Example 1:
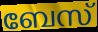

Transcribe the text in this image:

ബേസ്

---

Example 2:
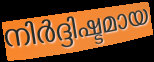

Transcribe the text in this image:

നിർദ്ദിഷ്ടമായ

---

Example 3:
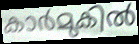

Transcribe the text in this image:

കാർമുകിൽ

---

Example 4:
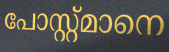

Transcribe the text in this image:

പോസ്റ്റ്മാനെ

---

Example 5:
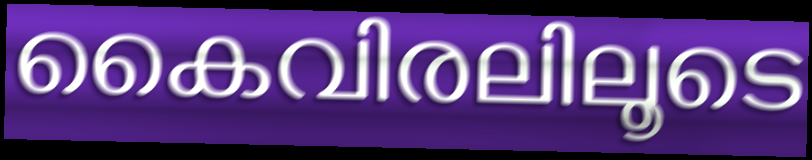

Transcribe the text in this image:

കൈവിരലിലൂടെ